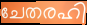
ചേതരഹി